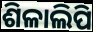
ଶିଳାଲିପି